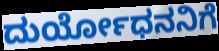
ದುರ್ಯೋಧನನಿಗೆ